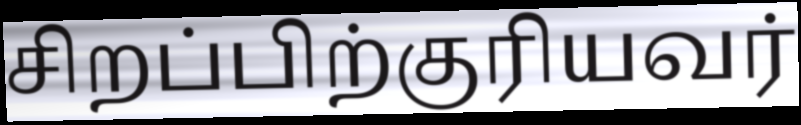
சிறப்பிற்குரியவர்